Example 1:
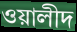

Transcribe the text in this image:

ওয়ালীদ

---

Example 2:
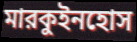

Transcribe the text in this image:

মারকুইনহোস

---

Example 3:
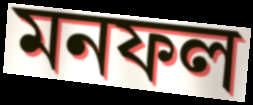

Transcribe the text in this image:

মনফল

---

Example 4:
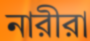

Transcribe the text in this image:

নারীরা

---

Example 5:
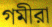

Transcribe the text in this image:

গমীরা